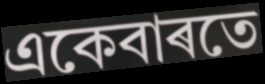
একেবাৰতে